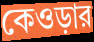
কেওড়ার